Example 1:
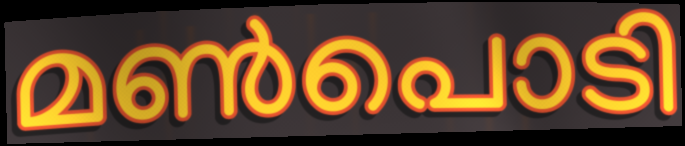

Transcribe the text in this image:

മൺപൊടി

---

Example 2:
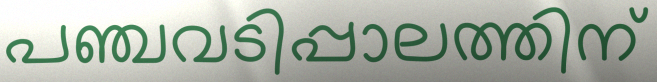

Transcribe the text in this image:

പഞ്ചവടിപ്പാലത്തിന്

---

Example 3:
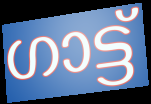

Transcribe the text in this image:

ഗാട്ട്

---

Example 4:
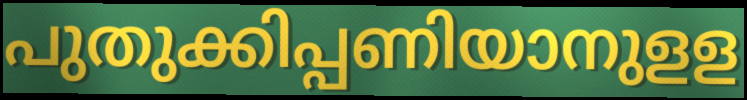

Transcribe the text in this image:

പുതുക്കിപ്പണിയാനുളള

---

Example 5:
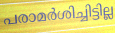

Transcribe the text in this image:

പരാമർശിച്ചിട്ടില്ല